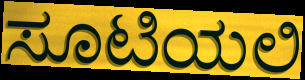
ಸೂಟಿಯಲಿ